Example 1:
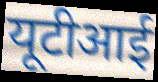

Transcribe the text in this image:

यूटीआई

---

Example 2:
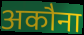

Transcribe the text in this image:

अकौना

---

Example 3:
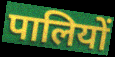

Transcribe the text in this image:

पालियों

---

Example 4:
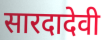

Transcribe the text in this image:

सारदादेवी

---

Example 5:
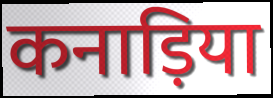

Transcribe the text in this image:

कनाड़िया